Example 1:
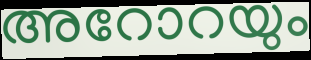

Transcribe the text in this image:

അറോറയും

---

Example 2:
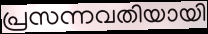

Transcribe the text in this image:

പ്രസന്നവതിയായി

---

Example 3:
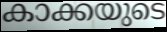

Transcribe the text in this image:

കാക്കയുടെ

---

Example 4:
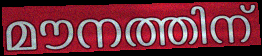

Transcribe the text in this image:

മൗനത്തിന്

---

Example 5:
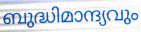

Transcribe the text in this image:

ബുദ്ധിമാന്ദ്യവും